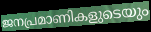
ജനപ്രമാണികളുടെയും